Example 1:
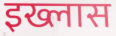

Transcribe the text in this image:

इख्लास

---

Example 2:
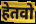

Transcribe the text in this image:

हेतवो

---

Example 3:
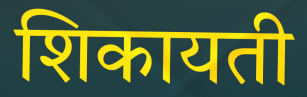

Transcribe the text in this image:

शिकायती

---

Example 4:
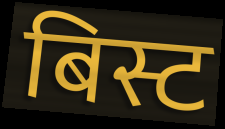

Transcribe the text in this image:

बिस्ट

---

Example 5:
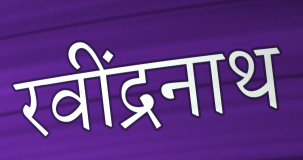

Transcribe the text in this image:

रवींद्रनाथ